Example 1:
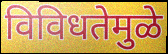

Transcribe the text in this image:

विविधतेमुळे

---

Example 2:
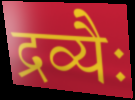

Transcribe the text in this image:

द्रव्यैः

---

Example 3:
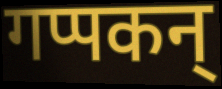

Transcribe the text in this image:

गप्पकन्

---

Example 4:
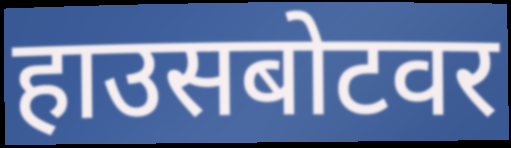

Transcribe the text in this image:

हाउसबोटवर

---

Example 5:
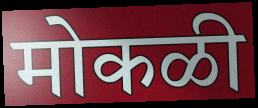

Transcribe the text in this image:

मोकळी